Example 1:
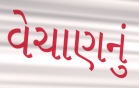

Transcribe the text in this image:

વેચાણનું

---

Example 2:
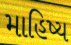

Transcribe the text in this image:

માહિષ્ય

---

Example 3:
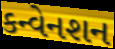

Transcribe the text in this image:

કન્વેનશન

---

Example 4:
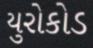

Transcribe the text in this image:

યુરોકોડ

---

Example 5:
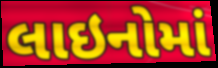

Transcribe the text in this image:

લાઇનોમાં